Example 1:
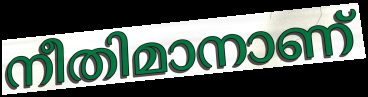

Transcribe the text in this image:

നീതിമാനാണ്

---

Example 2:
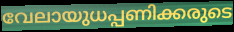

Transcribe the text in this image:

വേലായുധപ്പണിക്കരുടെ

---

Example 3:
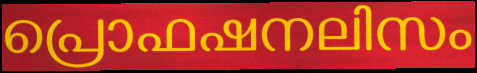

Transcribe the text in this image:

പ്രൊഫഷനലിസം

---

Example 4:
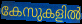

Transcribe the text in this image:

കേസുകളിൽ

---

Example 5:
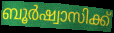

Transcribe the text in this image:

ബൂർഷ്വാസിക്ക്